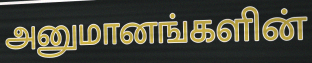
அனுமானங்களின்